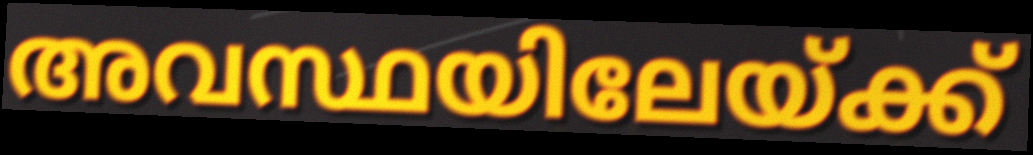
അവസ്ഥയിലേയ്ക്ക്